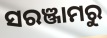
ସରଞ୍ଜାମରୁ